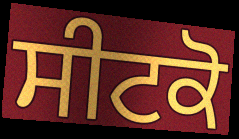
ਸੀਟਕੋ